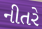
નીતરે